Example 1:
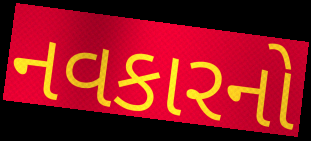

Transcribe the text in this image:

નવકારનો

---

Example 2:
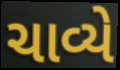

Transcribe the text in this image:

ચાવ્યે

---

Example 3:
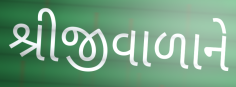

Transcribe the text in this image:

શ્રીજીવાળાને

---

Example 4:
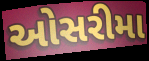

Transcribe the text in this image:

ઓસરીમા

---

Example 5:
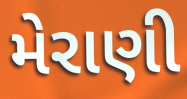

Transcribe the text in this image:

મેરાણી